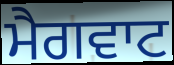
ਮੈਗਵਾਟ